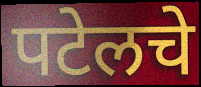
पटेलचे